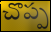
చొప్ప